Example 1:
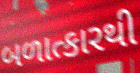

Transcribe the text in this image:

બળાત્કારથી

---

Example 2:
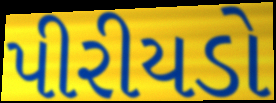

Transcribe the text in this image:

પીરીયડો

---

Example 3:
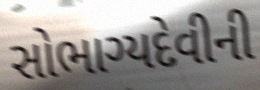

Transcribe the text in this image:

સોભાગ્યદેવીની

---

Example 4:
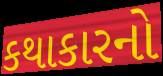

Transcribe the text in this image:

કથાકારનો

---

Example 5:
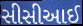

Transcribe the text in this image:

સીસીઆઈ